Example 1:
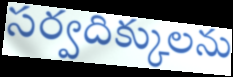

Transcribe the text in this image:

సర్వదిక్కులను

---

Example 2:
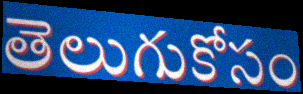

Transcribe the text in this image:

తెలుగుకోసం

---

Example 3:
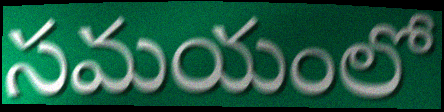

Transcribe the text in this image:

సమయంలో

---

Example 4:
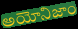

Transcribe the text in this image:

అయోనిజాం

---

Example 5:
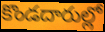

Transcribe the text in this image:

కొండదారుల్లో